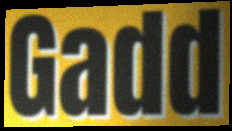
Gadd